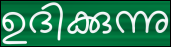
ഉദിക്കുന്നു